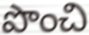
పొంచి